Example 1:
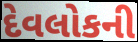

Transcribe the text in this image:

દેવલોકની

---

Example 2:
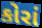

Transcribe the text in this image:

કોરાં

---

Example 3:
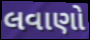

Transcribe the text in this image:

લવાણો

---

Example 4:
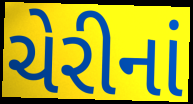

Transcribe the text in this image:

ચેરીનાં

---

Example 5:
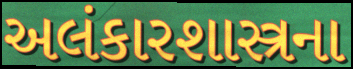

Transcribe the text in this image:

અલંકારશાસ્ત્રના